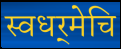
स्वधर्मेचि